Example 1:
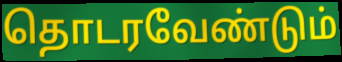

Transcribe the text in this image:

தொடரவேண்டும்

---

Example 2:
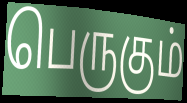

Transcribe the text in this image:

பெருகும்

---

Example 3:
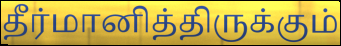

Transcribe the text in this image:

தீர்மானித்திருக்கும்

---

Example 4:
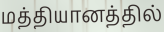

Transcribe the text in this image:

மத்தியானத்தில்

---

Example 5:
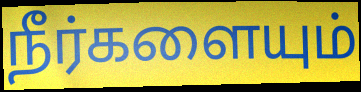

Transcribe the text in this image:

நீர்களையும்